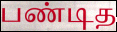
பண்டித